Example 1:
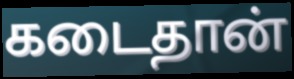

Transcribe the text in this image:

கடைதான்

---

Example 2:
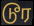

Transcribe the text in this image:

டூர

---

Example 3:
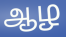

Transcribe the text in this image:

ஆழ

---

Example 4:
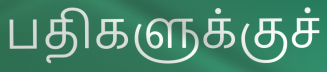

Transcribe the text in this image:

பதிகளுக்குச்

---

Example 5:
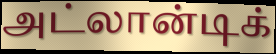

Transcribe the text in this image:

அட்லான்டிக்